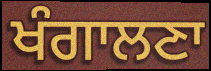
ਖੰਗਾਲਣਾ